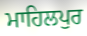
ਮਾਹਿਲਪੁਰ